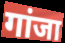
गांजा